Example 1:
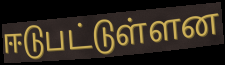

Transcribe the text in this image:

ஈடுபட்டுள்ளன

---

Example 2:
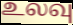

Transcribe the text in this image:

உலவு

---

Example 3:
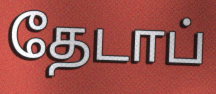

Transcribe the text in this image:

தேடாப்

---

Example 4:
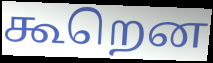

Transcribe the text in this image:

கூறென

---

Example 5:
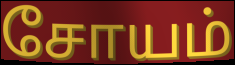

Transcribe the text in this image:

சோயம்